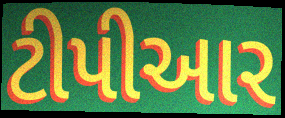
ટીપીઆર